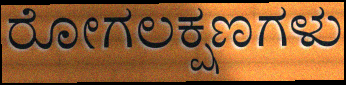
ರೋಗಲಕ್ಷಣಗಳು